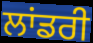
ਲਾਂਡਰੀ